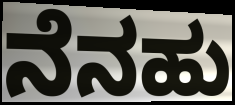
ನೆನಹು